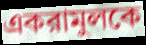
একরামুলকে